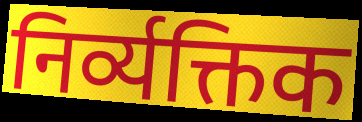
निर्व्यक्तिक